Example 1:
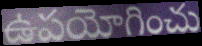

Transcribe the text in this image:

ఉపయోగించు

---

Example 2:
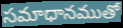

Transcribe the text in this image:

సమాధానముతో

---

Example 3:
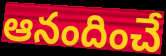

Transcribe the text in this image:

ఆనందించే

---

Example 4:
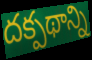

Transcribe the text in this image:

దక్పథాన్ని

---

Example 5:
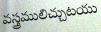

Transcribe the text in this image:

వస్త్రములిచ్చుటయు